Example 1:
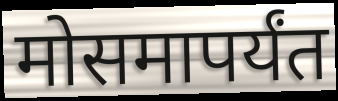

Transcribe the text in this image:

मोसमापर्यंत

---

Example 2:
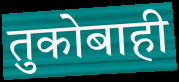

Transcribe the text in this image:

तुकोबाही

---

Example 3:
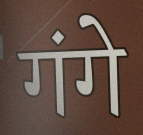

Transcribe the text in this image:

गंगे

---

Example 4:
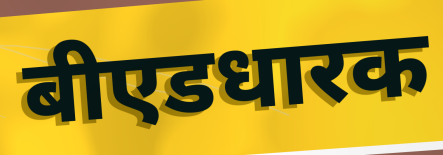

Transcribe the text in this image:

बीएडधारक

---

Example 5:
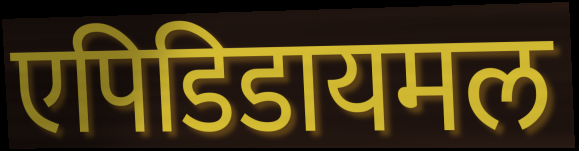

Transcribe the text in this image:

एपिडिडायमल